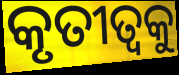
କୃତୀତ୍ଵକୁ